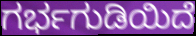
ಗರ್ಭಗುಡಿಯಿದೆ